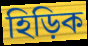
হিড়িক